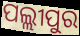
ପଲ୍ଲୀପୁର